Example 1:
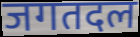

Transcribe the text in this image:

जगतदल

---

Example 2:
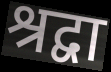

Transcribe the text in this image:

श्रद्वा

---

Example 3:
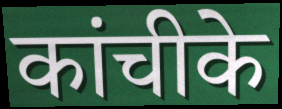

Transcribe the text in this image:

कांचीके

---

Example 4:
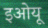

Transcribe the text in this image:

इओयू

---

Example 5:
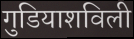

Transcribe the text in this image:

गुडियाशविली